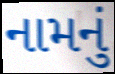
નામનું